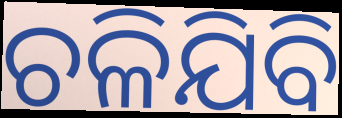
ଚଳିଯିବି